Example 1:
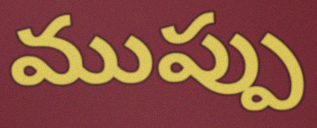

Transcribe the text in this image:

ముప్పు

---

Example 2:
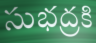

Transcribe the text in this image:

సుభద్రకి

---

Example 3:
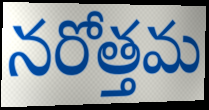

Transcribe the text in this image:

నరోత్తమ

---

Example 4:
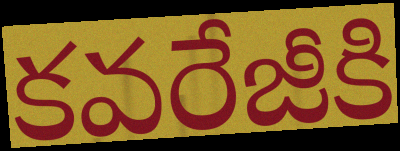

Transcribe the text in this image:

కవరేజీకి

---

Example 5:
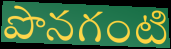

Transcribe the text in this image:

పొనగంటి